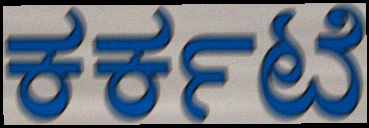
ಕರ್ಕಟೆ